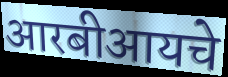
आरबीआयचे